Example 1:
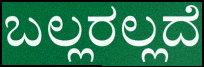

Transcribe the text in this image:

ಬಲ್ಲರಲ್ಲದೆ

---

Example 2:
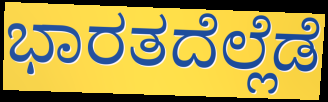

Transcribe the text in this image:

ಭಾರತದೆಲ್ಲೆಡೆ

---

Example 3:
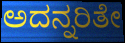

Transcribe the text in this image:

ಅದನ್ನರಿತೇ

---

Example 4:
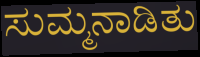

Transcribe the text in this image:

ಸುಮ್ಮನಾಡಿತು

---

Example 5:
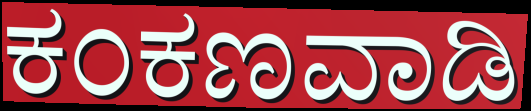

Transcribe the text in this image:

ಕಂಕಣವಾಡಿ